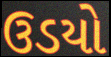
ઉડયો